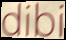
dibi